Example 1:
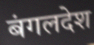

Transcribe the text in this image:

बंगलदेश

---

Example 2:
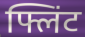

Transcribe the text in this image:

फ्लिंट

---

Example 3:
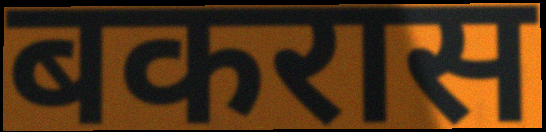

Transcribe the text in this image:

बकरास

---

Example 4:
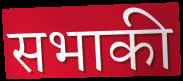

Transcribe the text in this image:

सभाकी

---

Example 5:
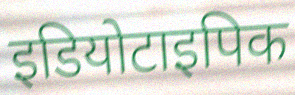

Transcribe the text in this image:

इडियोटाइपिक